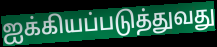
ஐக்கியப்படுத்துவது